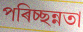
পৰিচ্ছন্নতা